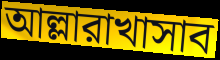
আল্লারাখাসাব